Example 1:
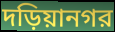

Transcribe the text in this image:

দড়িয়ানগর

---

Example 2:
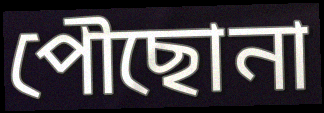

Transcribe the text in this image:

পৌছোনা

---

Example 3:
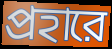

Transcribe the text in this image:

প্রহারে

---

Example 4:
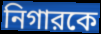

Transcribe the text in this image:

নিগারকে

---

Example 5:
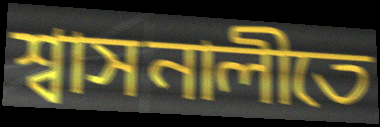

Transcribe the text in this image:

শ্বাসনালীতে